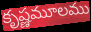
కృష్ణమూలము